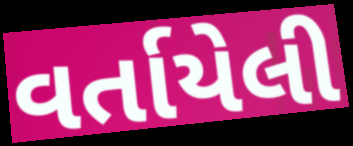
વર્તાયેલી